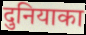
दुनियाका